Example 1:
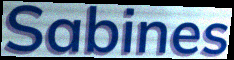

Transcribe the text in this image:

Sabines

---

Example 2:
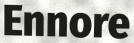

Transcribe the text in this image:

Ennore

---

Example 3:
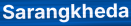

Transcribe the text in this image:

Sarangkheda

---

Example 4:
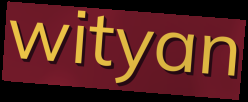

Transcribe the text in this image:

wityan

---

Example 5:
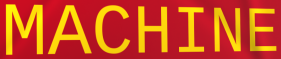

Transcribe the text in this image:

MACHINE